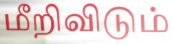
மீறிவிடும்